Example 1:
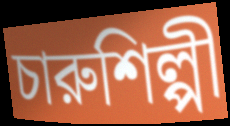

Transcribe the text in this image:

চারুশিল্পী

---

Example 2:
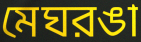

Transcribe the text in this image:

মেঘরঙা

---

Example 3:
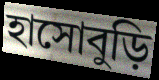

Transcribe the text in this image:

হাসোবুড়ি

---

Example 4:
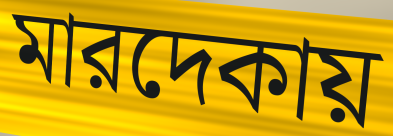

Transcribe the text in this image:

মারদেকায়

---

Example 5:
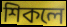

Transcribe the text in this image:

শিকলে